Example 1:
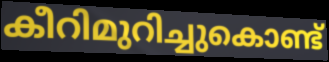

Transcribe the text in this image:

കീറിമുറിച്ചുകൊണ്ട്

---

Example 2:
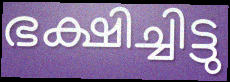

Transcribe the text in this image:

ഭക്ഷിച്ചിട്ടു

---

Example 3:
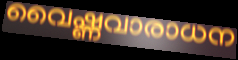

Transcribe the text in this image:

വൈഷ്ണവാരാധന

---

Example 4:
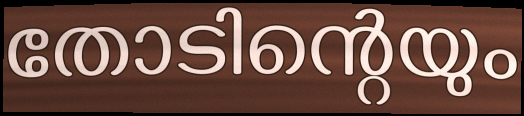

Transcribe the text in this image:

തോടിന്റെയും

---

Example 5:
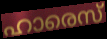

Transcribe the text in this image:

ഹാരെസ്